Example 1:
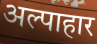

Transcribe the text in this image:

अल्पाहार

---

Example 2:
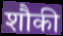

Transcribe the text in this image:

शौकी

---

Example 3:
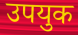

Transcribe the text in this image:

उपयुक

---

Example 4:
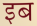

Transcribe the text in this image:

इब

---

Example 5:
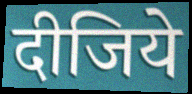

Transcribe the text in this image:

दीजिये